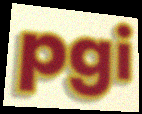
pgi